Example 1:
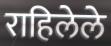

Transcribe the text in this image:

राहिलेले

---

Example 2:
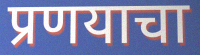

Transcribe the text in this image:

प्रणयाचा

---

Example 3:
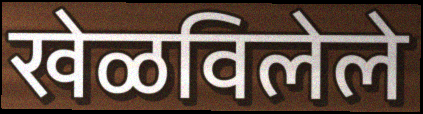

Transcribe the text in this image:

खेळविलेले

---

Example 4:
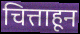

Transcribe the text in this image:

चित्ताहून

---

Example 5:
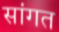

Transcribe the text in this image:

सांगत